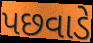
પછવાડે